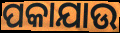
ପକାଯାଉ